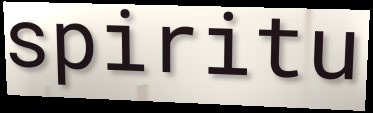
spiritu